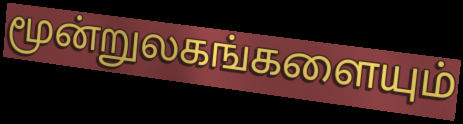
மூன்றுலகங்களையும்